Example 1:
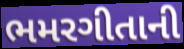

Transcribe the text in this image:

ભમરગીતાની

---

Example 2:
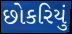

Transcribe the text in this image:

છોકરિયું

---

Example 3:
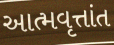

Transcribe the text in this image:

આત્મવૃત્તાંત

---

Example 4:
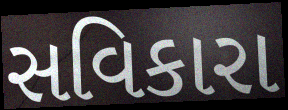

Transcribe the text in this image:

સવિકારા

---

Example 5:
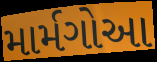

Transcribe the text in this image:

માર્મગોઆ